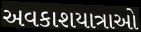
અવકાશયાત્રાઓ